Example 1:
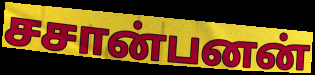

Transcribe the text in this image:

சசான்பனன்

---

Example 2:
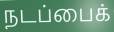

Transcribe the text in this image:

நடப்பைக்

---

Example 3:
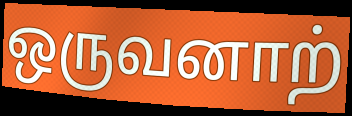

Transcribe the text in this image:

ஒருவனாற்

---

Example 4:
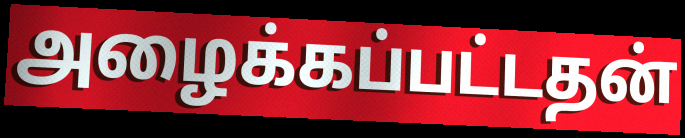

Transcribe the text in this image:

அழைக்கப்பட்டதன்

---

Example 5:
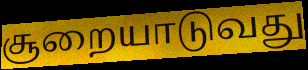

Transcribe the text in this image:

சூறையாடுவது